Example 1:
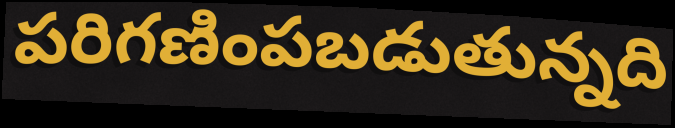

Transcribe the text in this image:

పరిగణింపబడుతున్నది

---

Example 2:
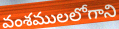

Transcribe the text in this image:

వంశములలోగాని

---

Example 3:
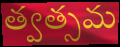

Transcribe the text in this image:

త్వత్సమ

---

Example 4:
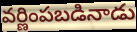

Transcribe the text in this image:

వర్ణింపబడినాడు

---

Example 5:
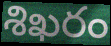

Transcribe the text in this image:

శిఖరం